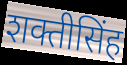
शक्तीसिंह